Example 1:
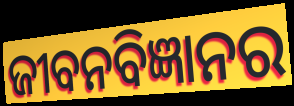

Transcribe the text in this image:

ଜୀବନବିଜ୍ଞାନର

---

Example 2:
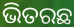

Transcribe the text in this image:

ଭିତରଛ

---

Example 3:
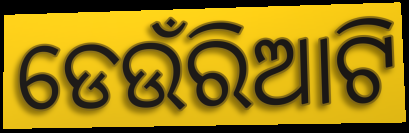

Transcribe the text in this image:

ଡେଉଁରିଆଟି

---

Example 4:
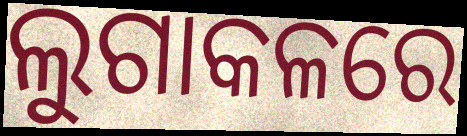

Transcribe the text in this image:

ଲୁଗାକଳରେ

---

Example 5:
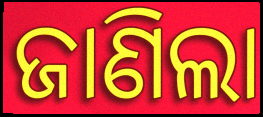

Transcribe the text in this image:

ଜାଣିଲା